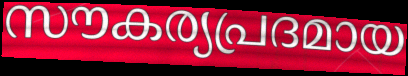
സൗകര്യപ്രദമായ